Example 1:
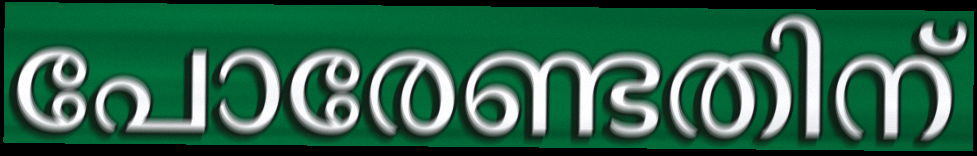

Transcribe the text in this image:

പോരേണ്ടതിന്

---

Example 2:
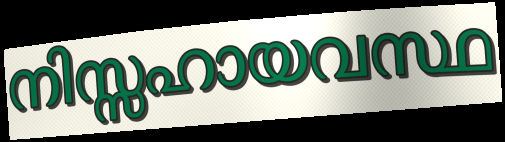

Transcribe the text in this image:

നിസ്സഹായവസ്ഥ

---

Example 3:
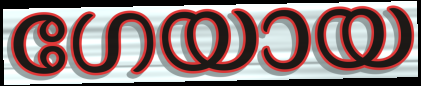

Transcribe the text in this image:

ഗേയായ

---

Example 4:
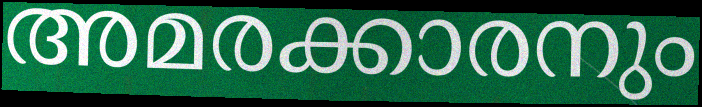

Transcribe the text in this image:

അമരക്കാരനും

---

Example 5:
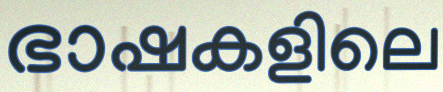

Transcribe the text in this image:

ഭാഷകളിലെ